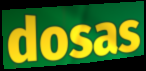
dosas